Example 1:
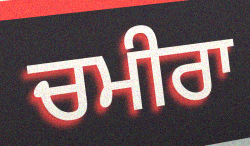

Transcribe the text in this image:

ਚਮੀਰਾ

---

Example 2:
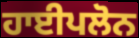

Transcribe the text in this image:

ਹਾਈਪਲੋਨ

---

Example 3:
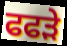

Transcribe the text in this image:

ਫਫੜੇ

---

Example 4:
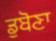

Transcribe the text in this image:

ਡੁਬੋਣਾ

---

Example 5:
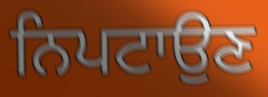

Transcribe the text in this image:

ਨਿਪਟਾਉਣ